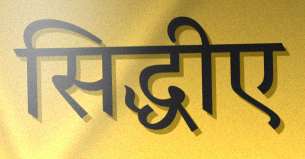
सिद्धीए